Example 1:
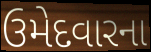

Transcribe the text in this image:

ઉમેદવારના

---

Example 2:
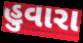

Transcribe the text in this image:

હુવારા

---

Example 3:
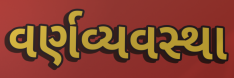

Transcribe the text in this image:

વર્ણવ્યવસ્થા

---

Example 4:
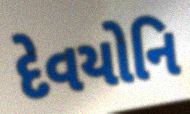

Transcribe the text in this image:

દેવયોનિ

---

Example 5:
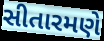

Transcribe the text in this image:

સીતારમણે